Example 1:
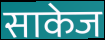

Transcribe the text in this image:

साकेज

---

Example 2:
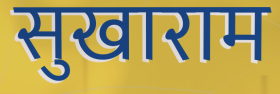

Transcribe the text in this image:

सुखाराम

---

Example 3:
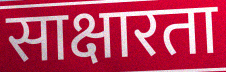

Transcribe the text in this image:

साक्षारता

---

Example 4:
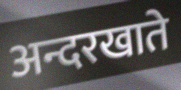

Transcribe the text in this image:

अन्दरखाते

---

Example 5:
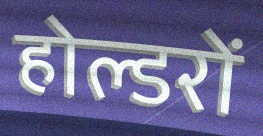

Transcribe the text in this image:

होल्‍डरों